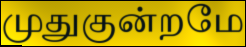
முதுகுன்றமே